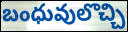
బంధువులొచ్చి